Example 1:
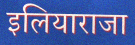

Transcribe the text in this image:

इलियाराजा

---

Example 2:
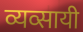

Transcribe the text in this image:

व्यव्सायी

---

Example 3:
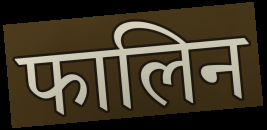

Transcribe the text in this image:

फालिन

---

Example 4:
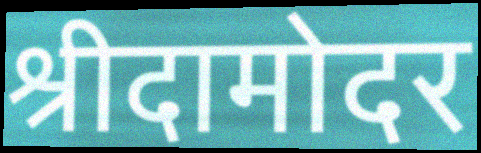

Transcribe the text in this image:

श्रीदामोदर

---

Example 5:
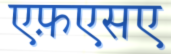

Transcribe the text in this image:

एफ़एसए